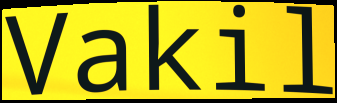
Vakil